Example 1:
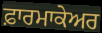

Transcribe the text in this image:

ਫ਼ਾਰਮਾਕੇਅਰ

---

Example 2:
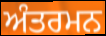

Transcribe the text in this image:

ਅੰਤਰਮਨ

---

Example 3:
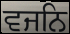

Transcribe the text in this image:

ਵਜਨਿ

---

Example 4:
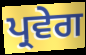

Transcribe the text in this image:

ਪ੍ਰਵੇਗ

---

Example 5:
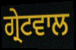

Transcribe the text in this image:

ਗ੍ਰੇਟਵਾਲ